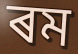
ৰম